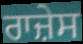
ਰਾਜ਼ੇਸ